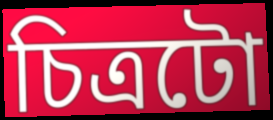
চিত্ৰটো